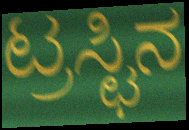
ಟ್ರಸ್ಟಿನ